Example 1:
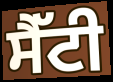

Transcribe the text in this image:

ਸੈੱਟੀ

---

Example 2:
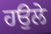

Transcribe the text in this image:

ਹਉਲੇ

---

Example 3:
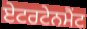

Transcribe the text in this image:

ਏਟਰਟੇਨਮੈਂਟ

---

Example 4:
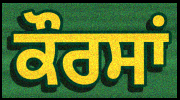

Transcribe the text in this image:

ਕੌਰਸਾਂ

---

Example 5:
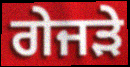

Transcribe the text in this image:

ਗੇਜੜੇ